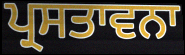
ਪ੍ਰਸਤਾਵਨਾ